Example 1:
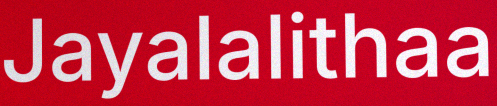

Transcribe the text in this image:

Jayalalithaa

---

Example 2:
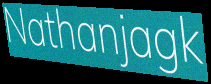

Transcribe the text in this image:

Nathanjagk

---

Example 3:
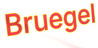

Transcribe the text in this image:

Bruegel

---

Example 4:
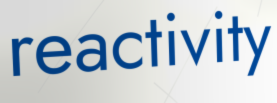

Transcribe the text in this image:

reactivity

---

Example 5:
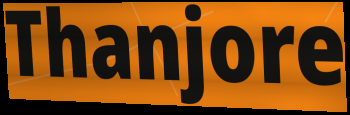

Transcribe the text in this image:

Thanjore